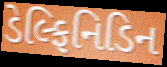
ડેલ્ફિનિડિન